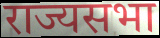
राज्‍यसभा